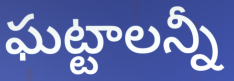
ఘట్టాలన్నీ